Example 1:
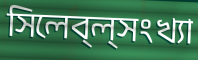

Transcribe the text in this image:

সিলেব্‌ল্‌সংখ্যা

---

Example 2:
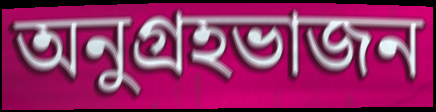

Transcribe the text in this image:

অনুগ্রহভাজন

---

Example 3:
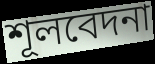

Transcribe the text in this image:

শূলবেদনা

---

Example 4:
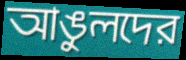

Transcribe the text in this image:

আঙুলদের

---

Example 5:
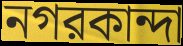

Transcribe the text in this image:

নগরকান্দা